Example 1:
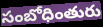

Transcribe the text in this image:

సంబోధింతురు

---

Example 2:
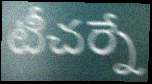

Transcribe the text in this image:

టీచర్నే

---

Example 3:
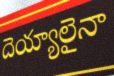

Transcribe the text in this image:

దెయ్యాలైనా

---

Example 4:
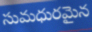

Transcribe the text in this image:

సుమధురమైన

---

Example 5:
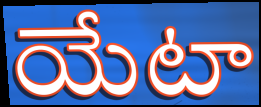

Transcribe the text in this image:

యేటా